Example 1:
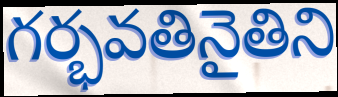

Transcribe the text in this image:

గర్భవతినైతిని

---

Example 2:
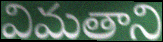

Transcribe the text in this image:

విమతాని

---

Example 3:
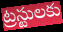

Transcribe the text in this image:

ట్రస్టులకు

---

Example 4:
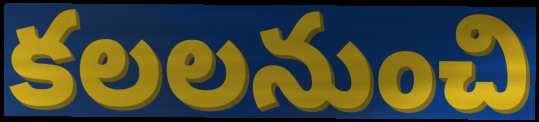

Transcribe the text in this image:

కలలనుంచి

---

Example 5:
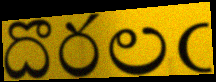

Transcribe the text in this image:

దొరలఁ